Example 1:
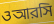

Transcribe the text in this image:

ওআরসি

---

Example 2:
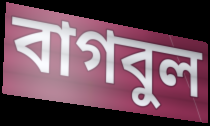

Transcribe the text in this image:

বাগবুল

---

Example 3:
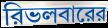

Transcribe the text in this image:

রিভলবারের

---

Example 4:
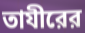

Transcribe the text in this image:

তাযীরের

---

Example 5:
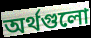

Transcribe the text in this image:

অর্থগুলো